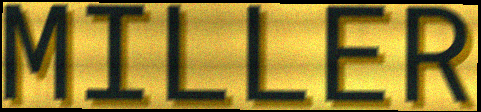
MILLER